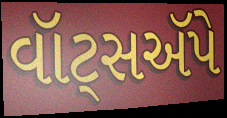
વૉટ્સઍપે